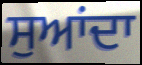
ਸੁਆਂਦਾ